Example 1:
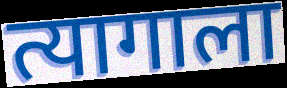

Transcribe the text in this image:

त्यागाला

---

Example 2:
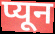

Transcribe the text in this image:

प्यून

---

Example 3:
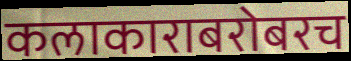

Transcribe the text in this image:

कलाकाराबरोबरच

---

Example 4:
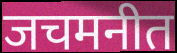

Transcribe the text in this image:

जचमनीत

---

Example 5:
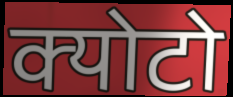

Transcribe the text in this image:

क्‍योटो